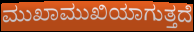
ಮುಖಾಮುಖಿಯಾಗುತ್ತದೆ